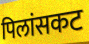
पिलांसकट